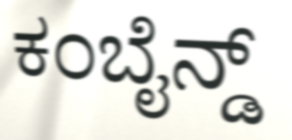
ಕಂಬೈನ್ಡ್